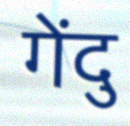
गेंदु